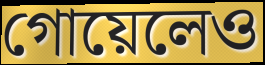
গোয়েলেও